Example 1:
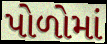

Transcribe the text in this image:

પોળોમાં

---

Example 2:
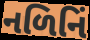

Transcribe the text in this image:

નળિનિં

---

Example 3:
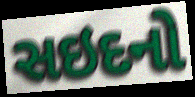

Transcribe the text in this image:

સઇદનો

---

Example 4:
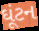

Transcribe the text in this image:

ઘૂંટન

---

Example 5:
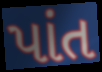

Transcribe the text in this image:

પાંત